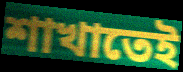
শাখাতেই